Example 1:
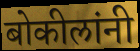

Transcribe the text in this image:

बोकीलांनी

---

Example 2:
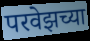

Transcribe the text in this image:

परवेझच्या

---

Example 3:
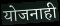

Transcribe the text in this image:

योजनाही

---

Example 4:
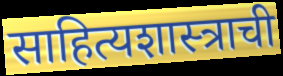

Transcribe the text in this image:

साहित्यशास्त्राची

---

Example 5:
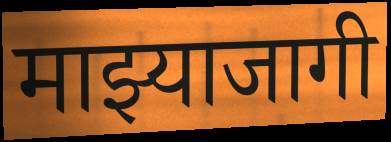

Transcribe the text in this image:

माझ्याजागी